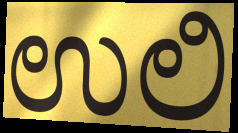
ಉಲಿ